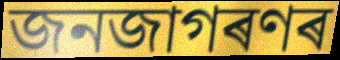
জনজাগৰণৰ